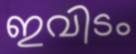
ഇവിടം